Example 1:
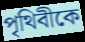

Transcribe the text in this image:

পৃথিবীকে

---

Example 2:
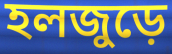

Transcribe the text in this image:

হলজুড়ে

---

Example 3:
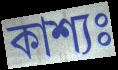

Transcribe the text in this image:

কাশ্যঃ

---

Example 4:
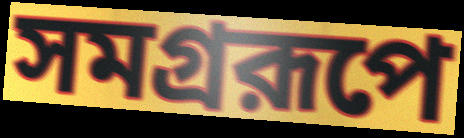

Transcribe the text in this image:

সমগ্ররূপে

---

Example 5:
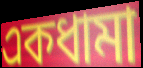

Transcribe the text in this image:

একধামা